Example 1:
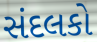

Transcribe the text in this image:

સંદલકો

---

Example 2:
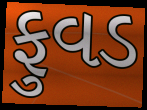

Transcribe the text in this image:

ફુવડ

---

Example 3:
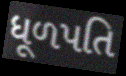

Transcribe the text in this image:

ધૂળપતિ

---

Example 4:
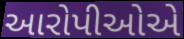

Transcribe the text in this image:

આરોપીઓએ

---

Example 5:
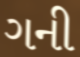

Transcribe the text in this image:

ગની